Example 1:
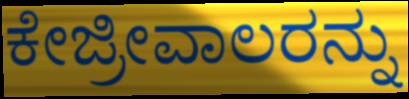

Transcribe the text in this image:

ಕೇಜ್ರೀವಾಲರನ್ನು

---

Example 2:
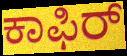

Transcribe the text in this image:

ಕಾಫಿರ್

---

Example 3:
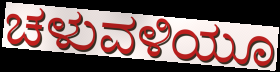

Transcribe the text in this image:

ಚಳುವಳಿಯೂ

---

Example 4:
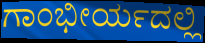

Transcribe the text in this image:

ಗಾಂಭೀರ್ಯದಲ್ಲಿ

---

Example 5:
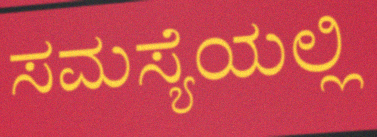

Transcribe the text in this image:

ಸಮಸ್ಯೆಯಲ್ಲಿ